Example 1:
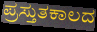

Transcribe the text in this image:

ಪ್ರಸ್ತುತಕಾಲದ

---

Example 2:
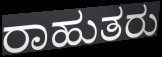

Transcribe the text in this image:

ರಾಹುತರು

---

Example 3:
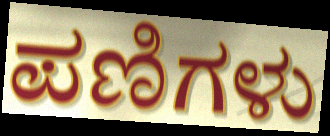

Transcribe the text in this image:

ಪಣಿಗಳು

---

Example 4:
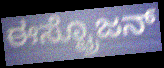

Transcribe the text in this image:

ಈಸ್ಟ್ರೊಜನ್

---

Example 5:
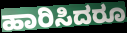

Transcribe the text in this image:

ಹಾರಿಸಿದರೂ